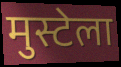
मुस्टेला